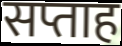
सप्ताह